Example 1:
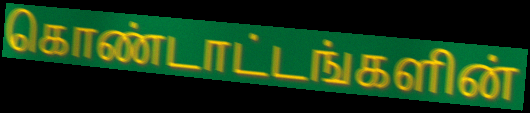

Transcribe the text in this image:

கொண்டாட்டங்களின்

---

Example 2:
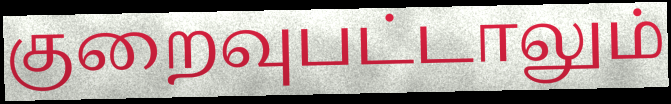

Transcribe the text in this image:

குறைவுபட்டாலும்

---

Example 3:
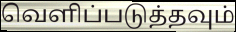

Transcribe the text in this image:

வெளிப்படுத்தவும்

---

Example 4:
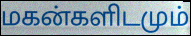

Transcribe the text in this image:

மகன்களிடமும்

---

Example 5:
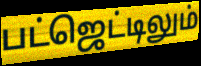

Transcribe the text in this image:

பட்ஜெட்டிலும்